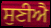
ਸੁਣੀਐ